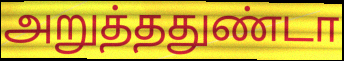
அறுத்ததுண்டா